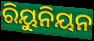
ରିୟୁନିୟନ